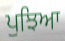
ਪੁਝਿਆ